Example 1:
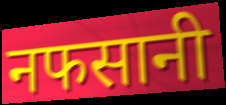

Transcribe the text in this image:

नफसानी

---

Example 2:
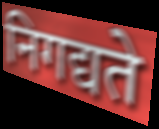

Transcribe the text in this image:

निगद्यते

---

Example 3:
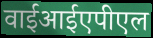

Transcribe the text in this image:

वाईआईएपीएल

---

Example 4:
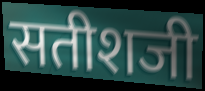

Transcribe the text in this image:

सतीशजी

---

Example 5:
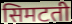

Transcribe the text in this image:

सिमटती